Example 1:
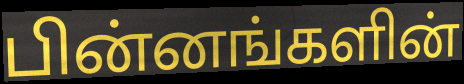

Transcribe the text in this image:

பின்னங்களின்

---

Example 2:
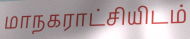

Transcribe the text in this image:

மாநகராட்சியிடம்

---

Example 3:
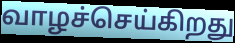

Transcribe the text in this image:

வாழச்செய்கிறது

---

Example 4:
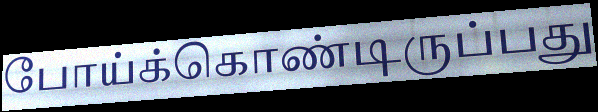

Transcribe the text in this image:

போய்க்கொண்டிருப்பது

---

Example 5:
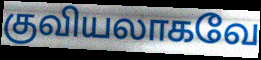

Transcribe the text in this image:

குவியலாகவே